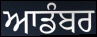
ਆਡੰਬਰ